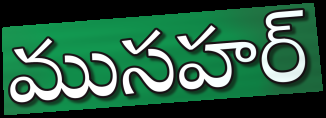
ముసహర్